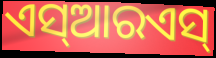
ଏସ୍ଆରଏସ୍